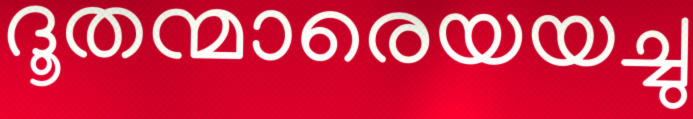
ദൂതന്മാരെയയച്ചു